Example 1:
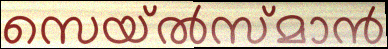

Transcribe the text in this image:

സെയ്ൽസ്മാൻ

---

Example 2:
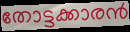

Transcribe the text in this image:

തോട്ടക്കാരൻ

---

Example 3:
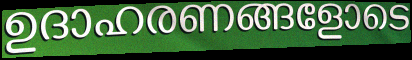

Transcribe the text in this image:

ഉദാഹരണങ്ങളോടെ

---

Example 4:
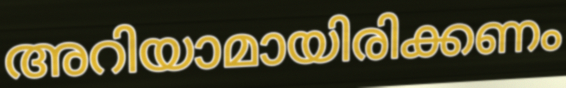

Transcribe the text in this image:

അറിയാമായിരിക്കണം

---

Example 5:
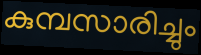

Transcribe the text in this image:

കുമ്പസാരിച്ചും